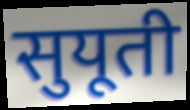
सुयूती